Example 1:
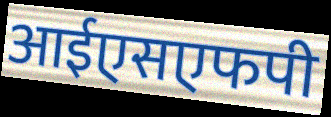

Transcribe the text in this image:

आईएसएफपी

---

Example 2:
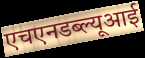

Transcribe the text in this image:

एचएनडब्ल्यूआई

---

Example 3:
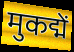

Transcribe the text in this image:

मुकद्में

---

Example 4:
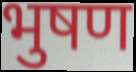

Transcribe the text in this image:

भुषण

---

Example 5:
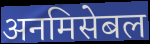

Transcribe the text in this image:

अनमिसेबल